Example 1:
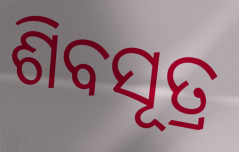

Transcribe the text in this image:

ଶିବସୂତ୍ର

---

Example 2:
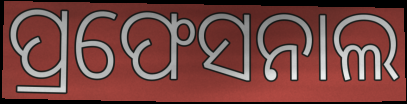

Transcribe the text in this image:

ପ୍ରଫେସନାଲ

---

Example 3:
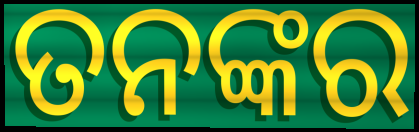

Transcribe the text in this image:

ତନଙ୍କର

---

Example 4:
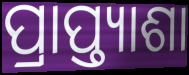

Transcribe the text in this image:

ପ୍ରାପ୍ତ୍ୟାଶା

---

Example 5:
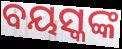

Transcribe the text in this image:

ବୟସ୍କଙ୍କ